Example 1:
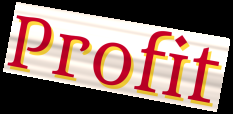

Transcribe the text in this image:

Profit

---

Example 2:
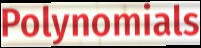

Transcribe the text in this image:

Polynomials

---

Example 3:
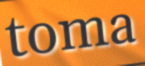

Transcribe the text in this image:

toma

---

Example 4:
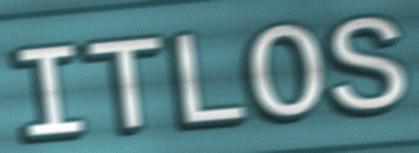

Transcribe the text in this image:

ITLOS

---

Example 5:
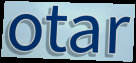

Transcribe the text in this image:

otar